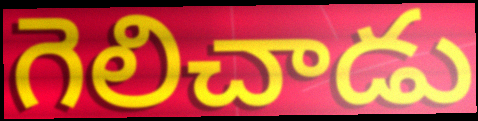
గెలిచాడు